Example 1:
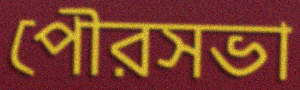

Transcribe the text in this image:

পৌরসভা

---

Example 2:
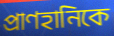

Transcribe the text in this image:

প্রাণহানিকে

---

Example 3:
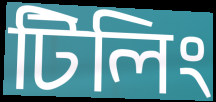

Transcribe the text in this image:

টিলিং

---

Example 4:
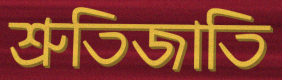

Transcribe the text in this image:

শ্রুতিজাতি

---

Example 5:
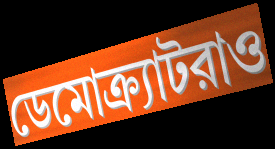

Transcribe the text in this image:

ডেমোক্র্যাটরাও